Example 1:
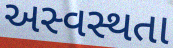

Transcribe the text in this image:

અસ્વસ્થતા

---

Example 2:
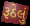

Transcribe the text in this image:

રૂઠેલું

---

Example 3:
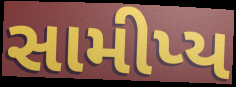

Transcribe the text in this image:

સામીપ્ય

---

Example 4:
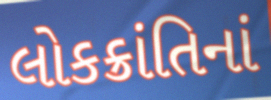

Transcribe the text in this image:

લોકક્રાંતિનાં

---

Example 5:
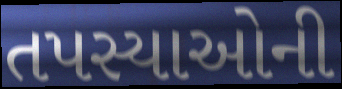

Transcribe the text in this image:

તપસ્યાઓની